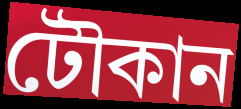
টৌকান